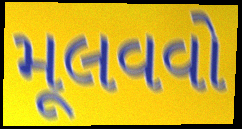
મૂલવવો